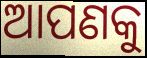
ଆପଣକୁ